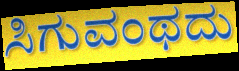
ಸಿಗುವಂಥದು